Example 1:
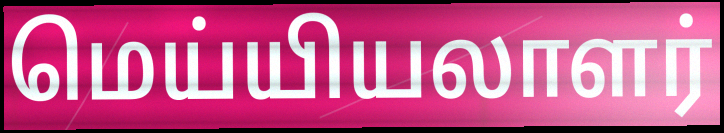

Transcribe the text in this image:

மெய்யியலாளர்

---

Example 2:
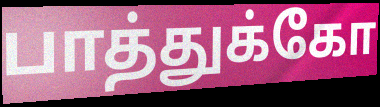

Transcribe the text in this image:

பாத்துக்கோ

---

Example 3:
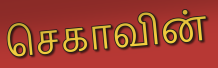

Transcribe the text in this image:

செகாவின்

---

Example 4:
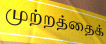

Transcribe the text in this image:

முற்றத்தைக்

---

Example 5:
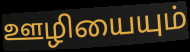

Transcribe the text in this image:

ஊழியையும்